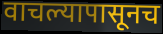
वाचल्यापासूनच